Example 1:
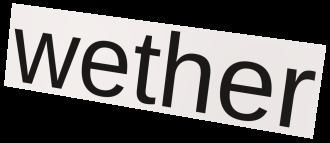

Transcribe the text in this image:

wether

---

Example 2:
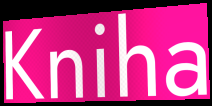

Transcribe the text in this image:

Kniha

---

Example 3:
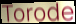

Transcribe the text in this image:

Torode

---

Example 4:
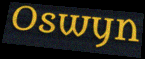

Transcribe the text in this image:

Oswyn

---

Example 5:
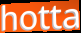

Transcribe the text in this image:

hotta